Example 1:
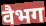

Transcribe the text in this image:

वैभग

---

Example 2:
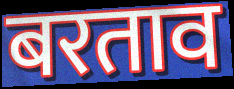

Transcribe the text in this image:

बरताव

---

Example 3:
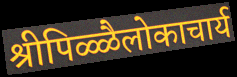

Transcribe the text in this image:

श्रीपिळ्ळैलोकाचार्य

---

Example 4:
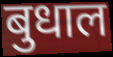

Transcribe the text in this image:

बुधाल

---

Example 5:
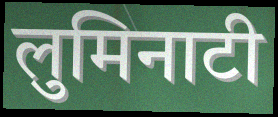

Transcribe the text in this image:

लुमिनाटी